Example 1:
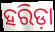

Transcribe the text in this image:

ହରିଡ଼ା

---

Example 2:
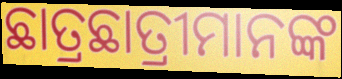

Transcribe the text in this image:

ଛାତ୍ରଛାତ୍ରୀମାନଙ୍କ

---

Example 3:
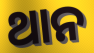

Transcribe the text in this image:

ଥାନ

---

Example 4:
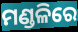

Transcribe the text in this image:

ମଣ୍ଡଳିରେ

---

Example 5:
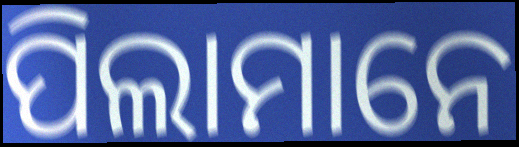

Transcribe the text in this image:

ପିଲାମାନେ